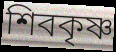
শিবকৃষ্ণ